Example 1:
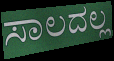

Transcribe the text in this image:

ಸಾಲದಲ್ಲ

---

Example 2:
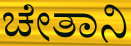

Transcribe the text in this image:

ಚೇತಾನಿ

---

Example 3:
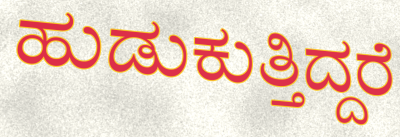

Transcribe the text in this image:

ಹುಡುಕುತ್ತಿದ್ದರೆ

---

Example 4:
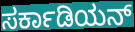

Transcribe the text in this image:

ಸರ್ಕಾಡಿಯನ್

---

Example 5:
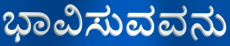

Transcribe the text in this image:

ಭಾವಿಸುವವನು